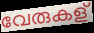
വേരുകള്